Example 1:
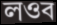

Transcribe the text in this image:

লওব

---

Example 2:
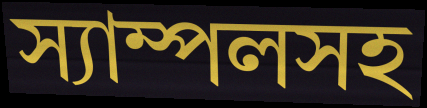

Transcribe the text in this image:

স্যাম্পলসহ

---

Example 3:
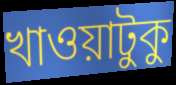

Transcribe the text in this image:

খাওয়াটুকু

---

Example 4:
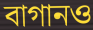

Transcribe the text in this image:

বাগানও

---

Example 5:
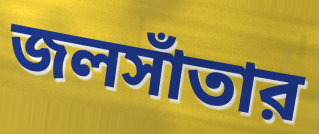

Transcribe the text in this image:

জলসাঁতার